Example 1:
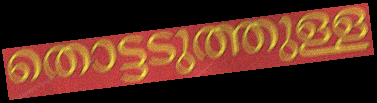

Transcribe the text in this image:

തൊട്ടടുത്തുള്ള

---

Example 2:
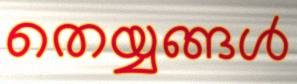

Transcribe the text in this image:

തെയ്യങ്ങൾ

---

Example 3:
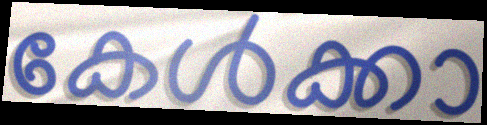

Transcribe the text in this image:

കേൾക്കാ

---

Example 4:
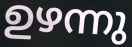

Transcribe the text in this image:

ഉഴന്നു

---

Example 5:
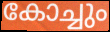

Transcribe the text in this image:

കോച്ചും